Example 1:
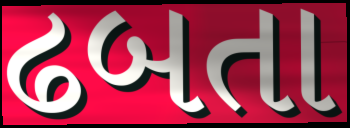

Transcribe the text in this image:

ઢબતા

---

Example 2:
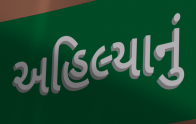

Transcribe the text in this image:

અહિલ્યાનું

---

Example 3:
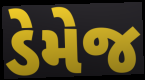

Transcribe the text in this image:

ડેમેજ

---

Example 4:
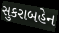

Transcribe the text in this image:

સુકરાબહેન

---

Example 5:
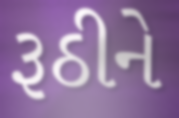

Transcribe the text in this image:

રૂઠીને